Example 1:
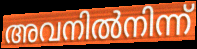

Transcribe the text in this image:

അവനിൽനിന്ന്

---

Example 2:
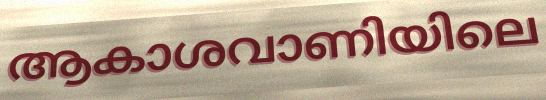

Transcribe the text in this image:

ആകാശവാണിയിലെ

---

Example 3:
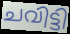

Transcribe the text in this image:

ചവിട്ടി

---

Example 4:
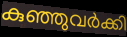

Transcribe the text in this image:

കുഞ്ഞുവർക്കി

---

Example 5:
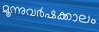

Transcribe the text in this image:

മൂന്നുവർഷക്കാലം